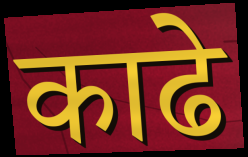
काढे